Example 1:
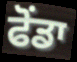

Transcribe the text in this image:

ਫੋਂਡਾ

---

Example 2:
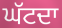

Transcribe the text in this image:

ਘੱਟਦਾ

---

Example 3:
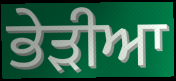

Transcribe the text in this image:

ਭੇੜੀਆ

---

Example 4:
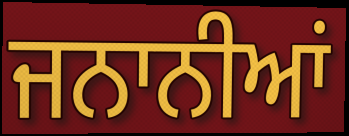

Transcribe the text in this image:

ਜਨਾਨੀਆਂ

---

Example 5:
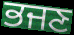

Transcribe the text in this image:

ਭਜਣ